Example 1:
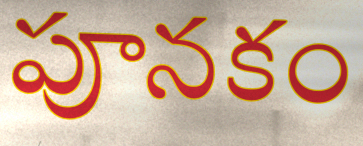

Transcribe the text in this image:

పూనకం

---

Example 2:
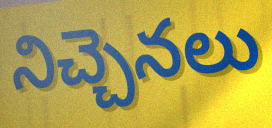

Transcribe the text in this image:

నిచ్చెనలు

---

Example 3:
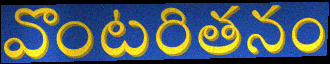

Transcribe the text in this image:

వొంటరితనం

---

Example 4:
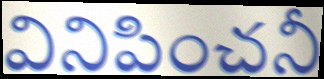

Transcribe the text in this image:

వినిపించనీ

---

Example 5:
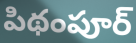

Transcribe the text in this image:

పిథంపూర్